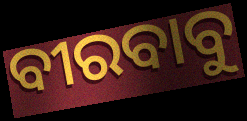
ବୀରବାବୁ